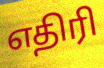
எதிரி